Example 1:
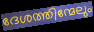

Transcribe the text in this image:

ദേശത്തിന്മേലും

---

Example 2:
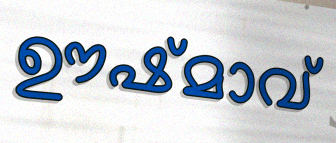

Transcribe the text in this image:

ഊഷ്മാവ്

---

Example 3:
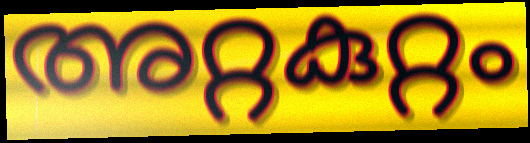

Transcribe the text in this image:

അറ്റകുറ്റം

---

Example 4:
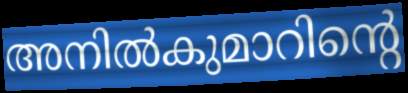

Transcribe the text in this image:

അനിൽകുമാറിന്റെ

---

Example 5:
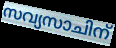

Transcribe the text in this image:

സവ്യസാചിന്